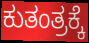
ಕುತಂತ್ರಕ್ಕೆ